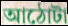
আঠোটা